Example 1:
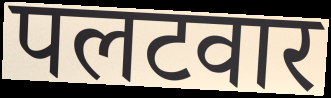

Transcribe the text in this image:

पलटवार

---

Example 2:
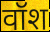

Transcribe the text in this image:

वॉश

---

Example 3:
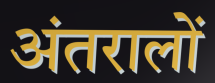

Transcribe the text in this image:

अंतरालों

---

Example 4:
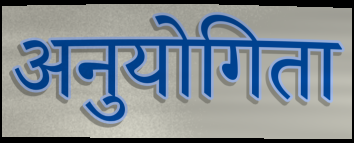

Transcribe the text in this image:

अनुयोगिता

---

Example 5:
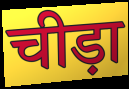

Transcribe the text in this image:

चीड़ा